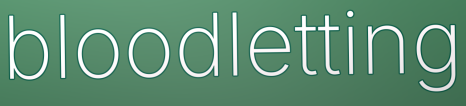
bloodletting